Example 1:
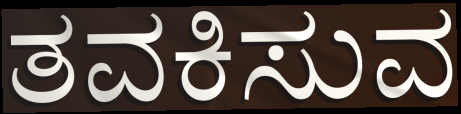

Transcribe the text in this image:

ತವಕಿಸುವ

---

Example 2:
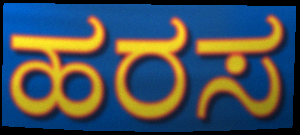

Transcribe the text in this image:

ಹರಸ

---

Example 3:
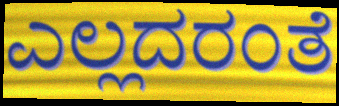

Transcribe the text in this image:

ಎಲ್ಲದರಂತೆ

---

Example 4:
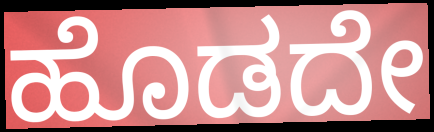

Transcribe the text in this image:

ಹೊಡದೇ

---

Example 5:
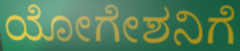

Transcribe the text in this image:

ಯೋಗೇಶನಿಗೆ